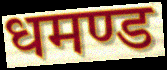
धमण्ड